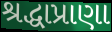
શ્રદ્ધાપ્રાણા